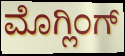
ಮೊಗ್ಲಿಂಗ್